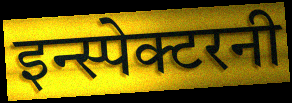
इन्स्पेक्टरनी